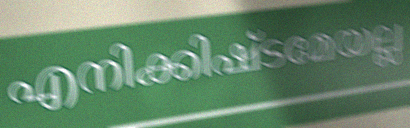
എനിക്കിഷ്ടമേയല്ല